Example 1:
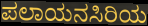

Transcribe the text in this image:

ಪಲಾಯನಸಿರಿಯ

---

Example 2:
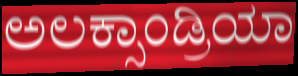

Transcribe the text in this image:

ಅಲಕ್ಸಾಂಡ್ರಿಯಾ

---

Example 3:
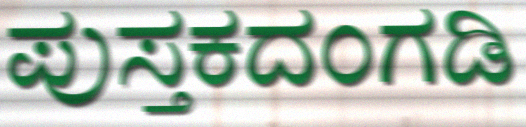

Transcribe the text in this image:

ಪುಸ್ತಕದಂಗಡಿ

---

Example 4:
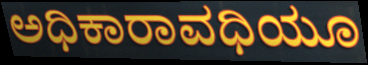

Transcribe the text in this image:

ಅಧಿಕಾರಾವಧಿಯೂ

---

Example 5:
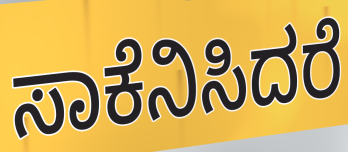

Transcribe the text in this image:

ಸಾಕೆನಿಸಿದರೆ